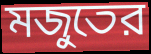
মজুতের